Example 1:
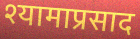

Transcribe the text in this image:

श्यामाप्रसाद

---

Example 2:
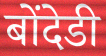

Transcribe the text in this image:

बोंदेडी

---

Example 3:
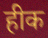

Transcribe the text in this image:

हीक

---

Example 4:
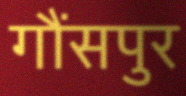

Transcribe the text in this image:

गौंसपुर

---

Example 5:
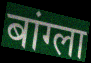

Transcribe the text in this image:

बांग्‍ला